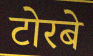
टोरबे